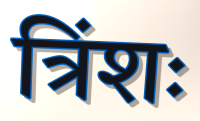
त्रिंशः